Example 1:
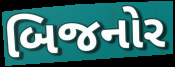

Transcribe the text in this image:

બિજનોર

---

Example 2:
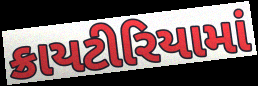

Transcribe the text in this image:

ક્રાયટીરિયામાં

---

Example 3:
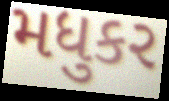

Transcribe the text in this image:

મધુકર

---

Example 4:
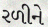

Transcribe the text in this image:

રળીને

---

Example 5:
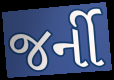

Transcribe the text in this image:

જર્ની